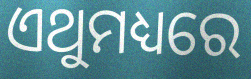
ଏଥୁମଧ୍ୟରେ